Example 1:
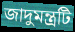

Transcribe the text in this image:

জাদুমন্ত্রটি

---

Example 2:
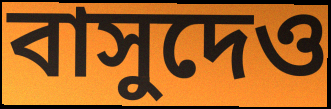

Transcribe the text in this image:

বাসুদেও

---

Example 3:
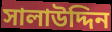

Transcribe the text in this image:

সালাউদ্দিন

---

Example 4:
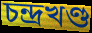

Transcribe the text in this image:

চন্দ্রখণ্ড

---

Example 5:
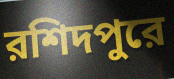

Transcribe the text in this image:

রশিদপুরে